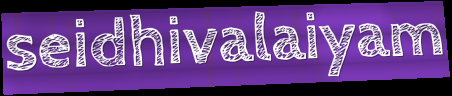
seidhivalaiyam